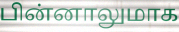
பின்னாலுமாக